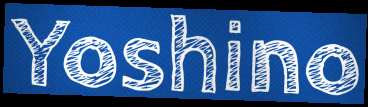
Yoshino